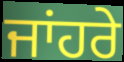
ਜਾਂਹਰੇ